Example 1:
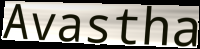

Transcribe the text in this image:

Avastha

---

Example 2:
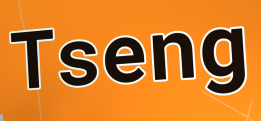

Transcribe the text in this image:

Tseng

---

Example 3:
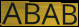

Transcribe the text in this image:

ABAB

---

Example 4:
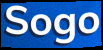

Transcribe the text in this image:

Sogo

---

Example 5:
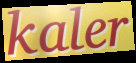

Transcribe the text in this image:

kaler